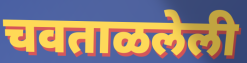
चवताळलेली